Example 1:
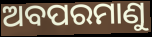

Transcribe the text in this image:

ଅବପରମାଣୁ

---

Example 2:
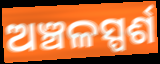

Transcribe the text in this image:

ଅଞ୍ଚଳସ୍ପର୍ଶ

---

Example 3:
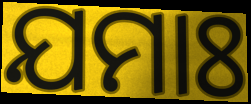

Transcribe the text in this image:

ଯମାଃ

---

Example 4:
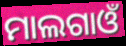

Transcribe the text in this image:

ମାଲଗାଓଁ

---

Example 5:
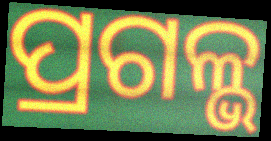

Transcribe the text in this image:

ପ୍ରଗଳ୍ଭ